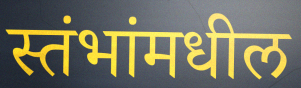
स्तंभांमधील